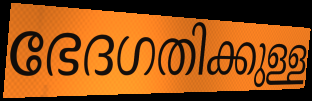
ഭേദഗതിക്കുള്ള